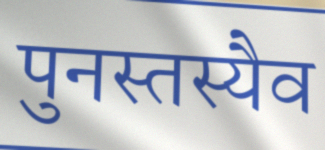
पुनस्तस्यैव